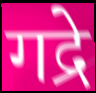
गद्रे